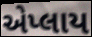
એપ્લાય